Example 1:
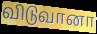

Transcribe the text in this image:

விடுவானா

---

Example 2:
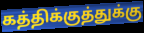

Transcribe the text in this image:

கத்திக்குத்துக்கு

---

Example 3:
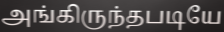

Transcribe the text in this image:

அங்கிருந்தபடியே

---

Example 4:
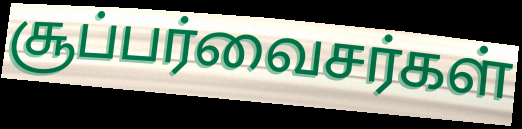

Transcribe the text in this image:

சூப்பர்வைசர்கள்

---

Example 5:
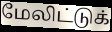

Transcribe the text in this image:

மேலிட்டுக்